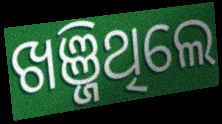
ଖଞ୍ଜିଥିଲେ